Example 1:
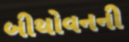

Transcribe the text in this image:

બીથોવનની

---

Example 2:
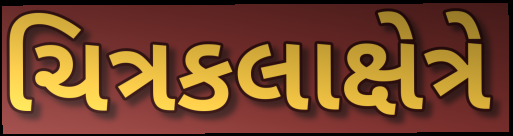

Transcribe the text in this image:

ચિત્રકલાક્ષેત્રે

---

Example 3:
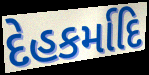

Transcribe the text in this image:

દેહકર્માદિ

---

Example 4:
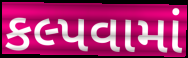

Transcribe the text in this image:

કલ્પવામાં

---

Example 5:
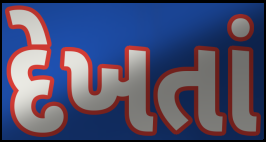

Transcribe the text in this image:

દેખતાં